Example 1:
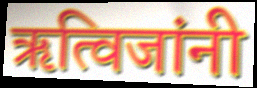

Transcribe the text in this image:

ऋत्विजांनी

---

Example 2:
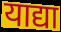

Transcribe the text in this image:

याद्या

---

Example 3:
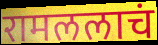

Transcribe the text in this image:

रामललाचं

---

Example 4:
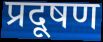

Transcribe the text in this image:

प्रदूषण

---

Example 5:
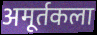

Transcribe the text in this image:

अमूर्तकला